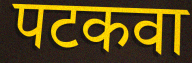
पटकवा